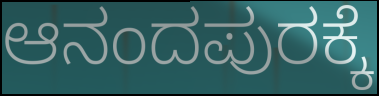
ಆನಂದಪುರಕ್ಕೆ